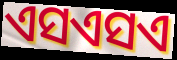
ଏସଏସଏ